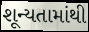
શૂન્યતામાંથી